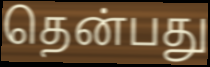
தென்பது